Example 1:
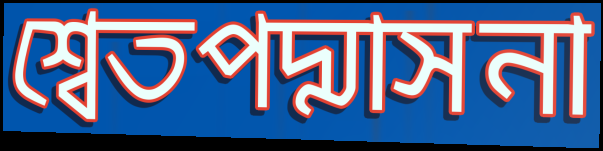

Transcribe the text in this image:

শ্বেতপদ্মাসনা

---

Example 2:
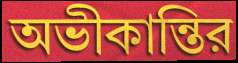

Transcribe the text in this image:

অভীকান্তির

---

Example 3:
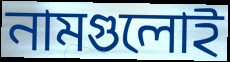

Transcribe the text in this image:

নামগুলোই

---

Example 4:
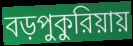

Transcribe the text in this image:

বড়পুকুরিয়ায়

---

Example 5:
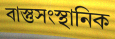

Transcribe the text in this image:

বাস্তুসংস্থানিক